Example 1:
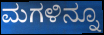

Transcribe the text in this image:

ಮಗಳಿನ್ನೂ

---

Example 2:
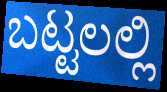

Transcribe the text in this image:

ಬಟ್ಟಲಲ್ಲಿ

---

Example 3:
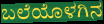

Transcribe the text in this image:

ಬಲೆಯೊಳಗಿನ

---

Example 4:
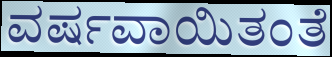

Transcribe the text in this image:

ವರ್ಷವಾಯಿತಂತೆ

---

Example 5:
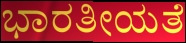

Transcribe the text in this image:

ಭಾರತೀಯತೆ